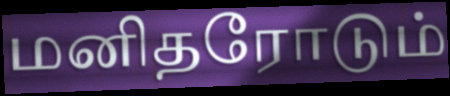
மனிதரோடும்